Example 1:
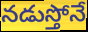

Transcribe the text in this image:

నడుస్తోనే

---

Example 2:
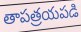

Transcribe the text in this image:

తాపత్రయపడి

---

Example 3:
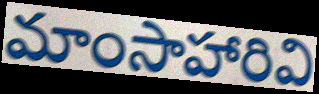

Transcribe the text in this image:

మాంసాహారివి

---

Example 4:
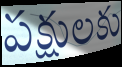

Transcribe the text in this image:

పక్షులకు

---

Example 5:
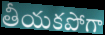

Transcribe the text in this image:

తీయకపోగా